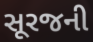
સૂરજની